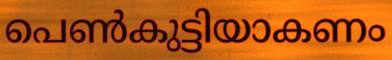
പെൺകുട്ടിയാകണം